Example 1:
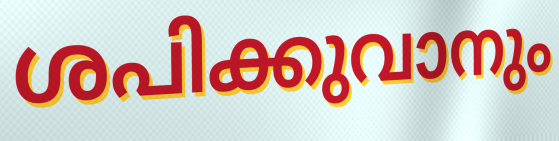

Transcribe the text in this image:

ശപിക്കുവാനും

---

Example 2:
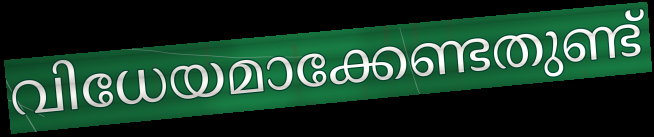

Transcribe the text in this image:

വിധേയമാക്കേണ്ടതുണ്ട്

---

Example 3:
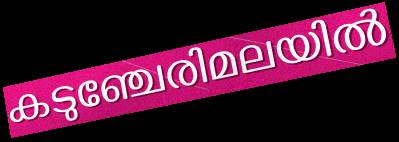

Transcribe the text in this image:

കടുഞ്ചേരിമലയിൽ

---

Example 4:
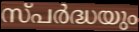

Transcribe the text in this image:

സ്പർദ്ധയും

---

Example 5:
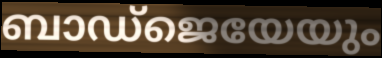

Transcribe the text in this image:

ബാഡ്ജെയേയും